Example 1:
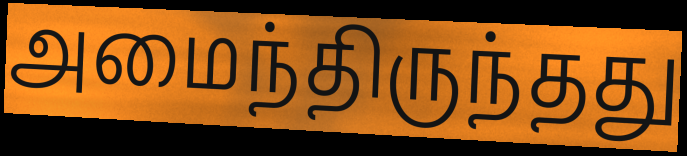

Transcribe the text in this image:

அமைந்திருந்தது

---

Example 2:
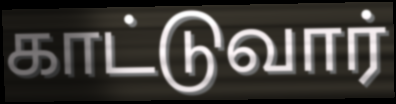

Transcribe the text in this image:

காட்டுவார்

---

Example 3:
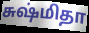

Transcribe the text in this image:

சுஷ்மிதா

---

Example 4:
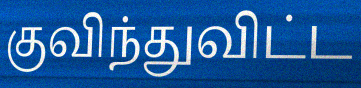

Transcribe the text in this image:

குவிந்துவிட்ட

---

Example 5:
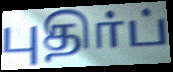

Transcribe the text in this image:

புதிர்ப்